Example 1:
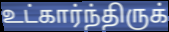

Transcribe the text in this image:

உட்கார்ந்திருக்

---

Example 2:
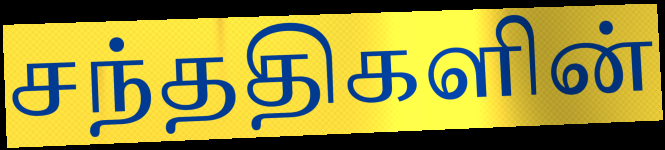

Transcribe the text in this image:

சந்ததிகளின்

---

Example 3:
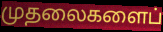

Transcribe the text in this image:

முதலைகளைப்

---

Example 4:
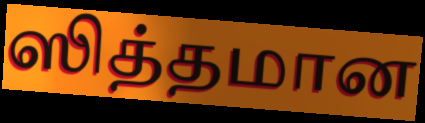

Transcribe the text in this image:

ஸித்தமான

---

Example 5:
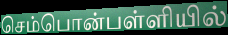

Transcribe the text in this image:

செம்பொன்பள்ளியில்